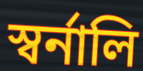
স্বর্নালি